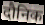
दौनिक